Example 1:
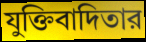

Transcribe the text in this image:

যুক্তিবাদিতার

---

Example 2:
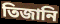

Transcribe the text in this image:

তিজানি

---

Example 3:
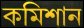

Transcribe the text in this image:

কমিশান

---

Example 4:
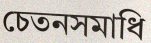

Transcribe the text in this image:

চেতনসমাধি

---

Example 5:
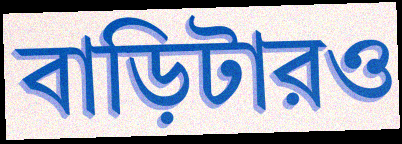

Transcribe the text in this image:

বাড়িটারও